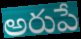
అరుపే